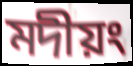
মদীয়ং